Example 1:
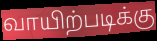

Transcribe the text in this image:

வாயிற்படிக்கு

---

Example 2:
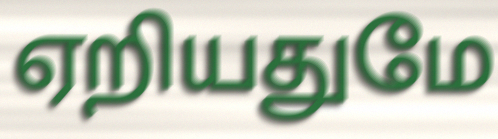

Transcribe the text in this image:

ஏறியதுமே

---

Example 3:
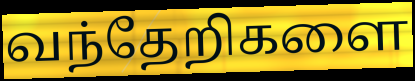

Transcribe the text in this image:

வந்தேறிகளை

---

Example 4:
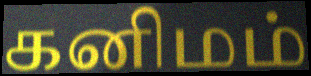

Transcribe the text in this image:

கனிமம்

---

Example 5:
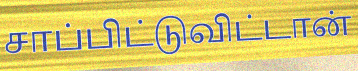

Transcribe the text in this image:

சாப்பிட்டுவிட்டான்